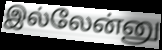
இல்லேன்னு